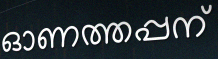
ഓണത്തപ്പന്